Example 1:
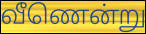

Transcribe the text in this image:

வீணென்று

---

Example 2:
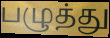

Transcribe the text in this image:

பழுத்து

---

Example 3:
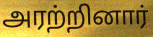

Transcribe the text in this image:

அரற்றினார்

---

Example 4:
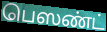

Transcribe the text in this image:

பெஸண்ட்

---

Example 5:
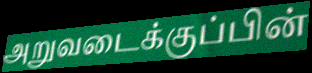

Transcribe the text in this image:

அறுவடைக்குப்பின்